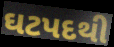
ઘટપદથી